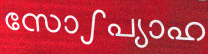
സോഽപ്യാഹ